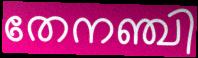
തേനഞ്ചി